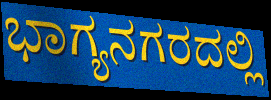
ಭಾಗ್ಯನಗರದಲ್ಲಿ